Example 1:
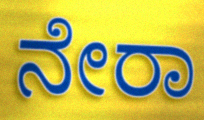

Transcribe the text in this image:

ನೇರಾ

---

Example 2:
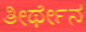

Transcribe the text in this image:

ತೀರ್ಥೇನ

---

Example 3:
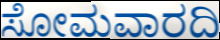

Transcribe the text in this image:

ಸೋಮವಾರದಿ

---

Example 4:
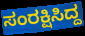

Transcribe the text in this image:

ಸಂರಕ್ಷಿಸಿದ್ದ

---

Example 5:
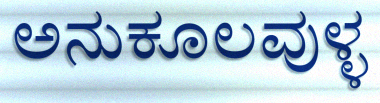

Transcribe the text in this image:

ಅನುಕೂಲವುಳ್ಳ